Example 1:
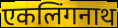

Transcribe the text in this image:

एकलिंगनाथ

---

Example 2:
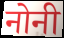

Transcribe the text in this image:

नोनी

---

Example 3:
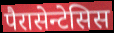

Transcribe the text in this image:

पैरासेन्टेसिस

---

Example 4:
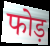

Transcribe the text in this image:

फोड़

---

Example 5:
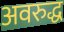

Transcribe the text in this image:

अवरुद्ध